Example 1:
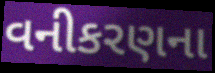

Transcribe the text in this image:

વનીકરણના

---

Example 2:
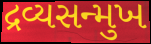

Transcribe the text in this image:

દ્રવ્યસન્મુખ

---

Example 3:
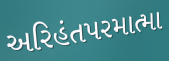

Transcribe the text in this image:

અરિહંતપરમાત્મા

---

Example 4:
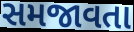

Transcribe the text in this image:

સમજાવતા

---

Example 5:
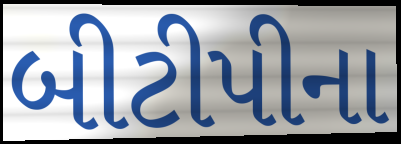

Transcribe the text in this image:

બીટીપીના